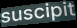
suscipit